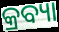
କ୍ରବ୍ୟା